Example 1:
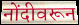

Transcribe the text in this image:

नोंदीवरून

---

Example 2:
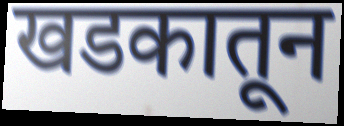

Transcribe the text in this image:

खडकातून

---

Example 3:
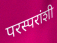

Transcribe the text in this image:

परस्परांशी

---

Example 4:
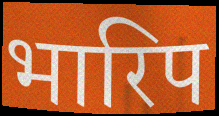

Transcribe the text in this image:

भारिप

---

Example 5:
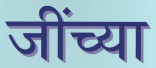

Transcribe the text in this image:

जींच्या